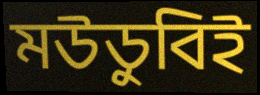
মউডুবিই